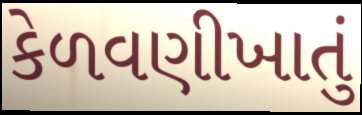
કેળવણીખાતું